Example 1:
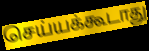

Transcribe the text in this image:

செய்யக்கூடாது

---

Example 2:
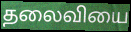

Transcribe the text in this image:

தலைவியை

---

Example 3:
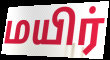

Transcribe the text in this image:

மயிர்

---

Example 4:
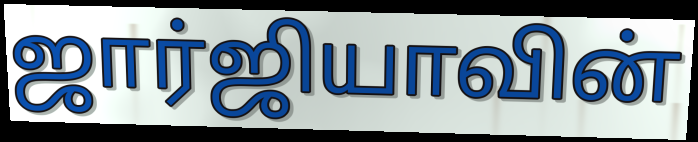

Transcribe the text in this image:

ஜார்ஜியாவின்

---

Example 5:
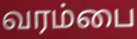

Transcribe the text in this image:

வரம்பை